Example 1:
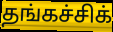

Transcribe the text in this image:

தங்கச்சிக்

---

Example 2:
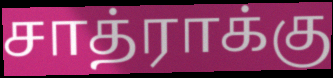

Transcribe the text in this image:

சாத்ராக்கு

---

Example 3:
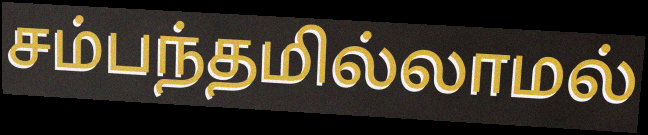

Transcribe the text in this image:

சம்பந்தமில்லாமல்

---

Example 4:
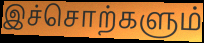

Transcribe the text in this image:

இச்சொற்களும்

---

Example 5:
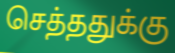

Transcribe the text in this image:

செத்ததுக்கு